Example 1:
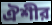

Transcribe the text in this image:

ঐশীর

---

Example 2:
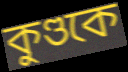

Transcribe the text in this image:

কুণ্ডকে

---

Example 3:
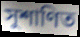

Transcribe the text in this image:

সুশাণিত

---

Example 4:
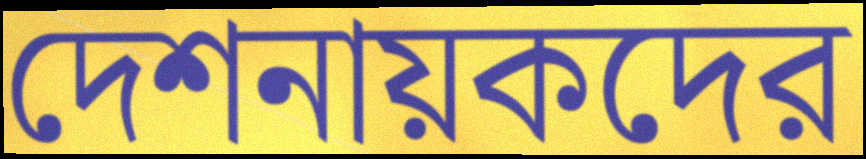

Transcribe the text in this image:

দেশনায়কদের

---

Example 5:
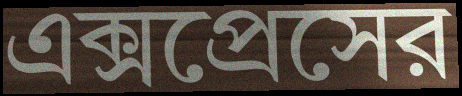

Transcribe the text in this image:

এক্সপ্রেসের